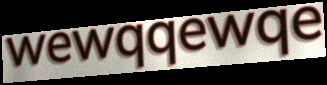
wewqqewqe